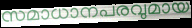
സമാധാനപരവുമായ